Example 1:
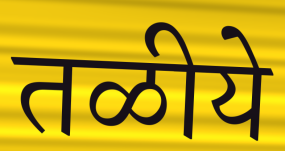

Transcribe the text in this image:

तळीये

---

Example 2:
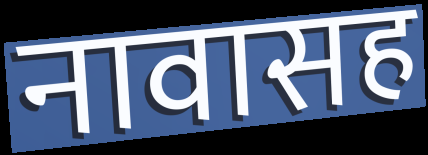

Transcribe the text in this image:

नावासह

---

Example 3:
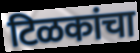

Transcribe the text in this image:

टिळकांचा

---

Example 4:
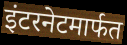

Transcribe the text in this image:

इंटरनेटमार्फत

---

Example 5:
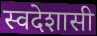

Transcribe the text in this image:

स्वदेशासी